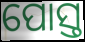
ପୋସ୍ତ